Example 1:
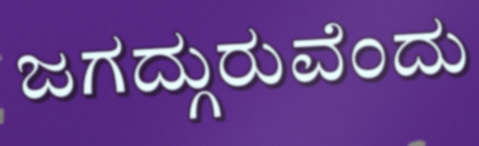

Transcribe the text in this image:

ಜಗದ್ಗುರುವೆಂದು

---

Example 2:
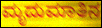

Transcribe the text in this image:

ಮೃದುಮಾತಿನ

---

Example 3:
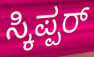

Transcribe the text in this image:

ಸ್ಕಿಪ್ಪರ್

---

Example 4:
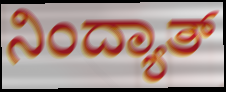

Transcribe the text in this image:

ನಿಂದ್ಯಾತ್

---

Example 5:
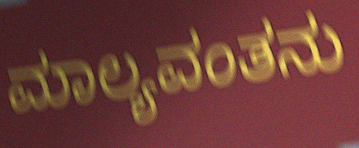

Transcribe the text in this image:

ಮಾಲ್ಯವಂತನು